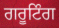
ਗਰੂਟਿੰਗ